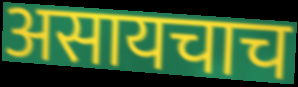
असायचाच